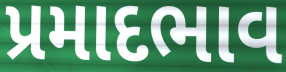
પ્રમાદભાવ